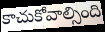
కాచుకోవాల్సింది